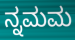
ನ್ನಮಮ